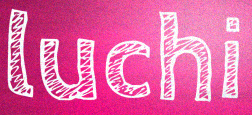
luchi